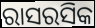
ରାସରସିକ